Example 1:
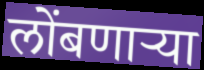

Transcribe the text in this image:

लोंबणार्‍या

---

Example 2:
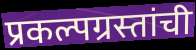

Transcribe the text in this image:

प्रकल्पग्रस्तांची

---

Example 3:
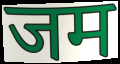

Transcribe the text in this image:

जम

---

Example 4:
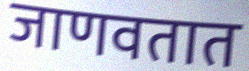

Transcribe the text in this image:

जाणवतात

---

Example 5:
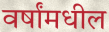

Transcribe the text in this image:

वर्षांमधील